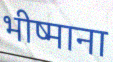
भीष्माना